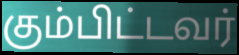
கும்பிட்டவர்